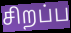
சிறப்ப